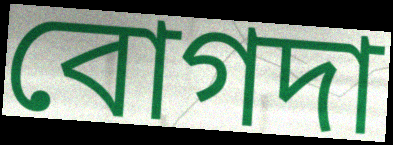
বোগদা